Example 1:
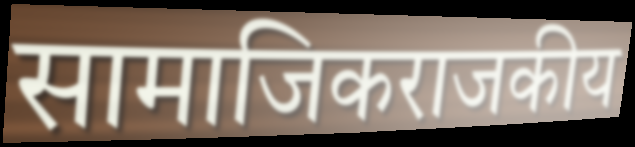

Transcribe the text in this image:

सामाजिकराजकीय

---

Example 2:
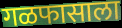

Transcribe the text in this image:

गळफासाला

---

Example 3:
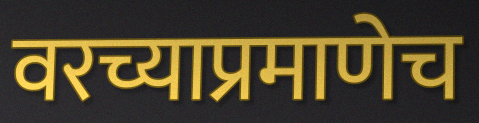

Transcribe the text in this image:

वरच्याप्रमाणेच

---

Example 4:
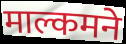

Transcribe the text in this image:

माल्कमने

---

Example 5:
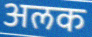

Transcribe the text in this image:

अलक